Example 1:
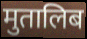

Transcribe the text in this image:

मुतालिब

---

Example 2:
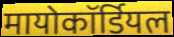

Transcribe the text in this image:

मायोकॉर्डियल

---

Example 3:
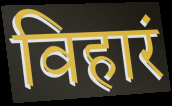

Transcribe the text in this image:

विहारं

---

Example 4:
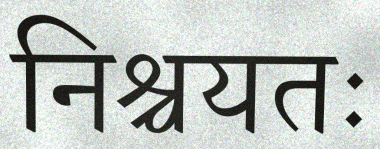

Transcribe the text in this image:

निश्चयतः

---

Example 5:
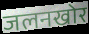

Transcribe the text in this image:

जलनखोर